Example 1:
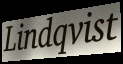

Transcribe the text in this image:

Lindqvist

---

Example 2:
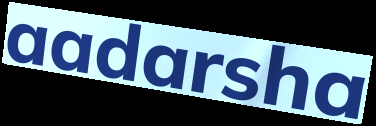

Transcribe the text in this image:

aadarsha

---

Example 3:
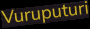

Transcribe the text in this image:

Vuruputuri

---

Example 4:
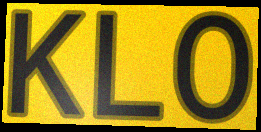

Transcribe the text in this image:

KLO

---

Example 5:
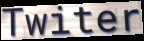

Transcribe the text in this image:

Twiter